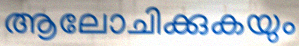
ആലോചിക്കുകയും